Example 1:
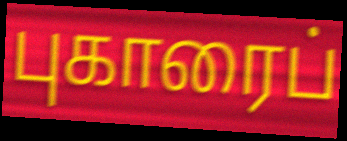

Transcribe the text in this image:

புகாரைப்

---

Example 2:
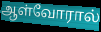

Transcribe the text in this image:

ஆள்வோரால்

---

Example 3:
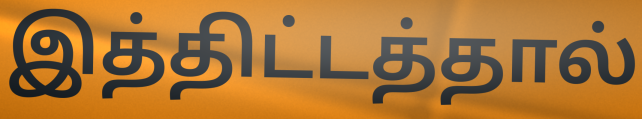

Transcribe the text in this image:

இத்திட்டத்தால்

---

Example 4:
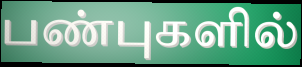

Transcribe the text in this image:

பண்புகளில்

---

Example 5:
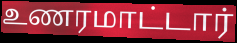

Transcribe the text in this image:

உணரமாட்டார்